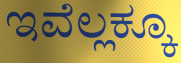
ಇವೆಲ್ಲಕ್ಕೂ